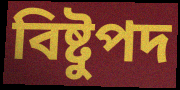
বিষ্টুপদ